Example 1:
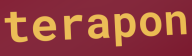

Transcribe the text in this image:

terapon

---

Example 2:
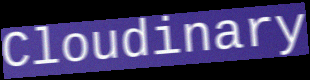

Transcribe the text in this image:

Cloudinary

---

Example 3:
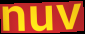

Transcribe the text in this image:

nuv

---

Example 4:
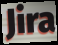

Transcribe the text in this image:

Jira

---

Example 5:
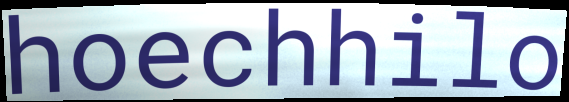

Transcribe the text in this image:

hoechhilo